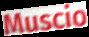
Muscio